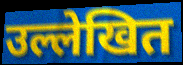
उल्लेखित